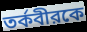
তর্কবীরকে